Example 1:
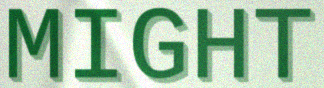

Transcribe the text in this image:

MIGHT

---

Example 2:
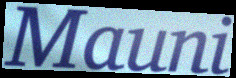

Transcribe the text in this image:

Mauni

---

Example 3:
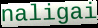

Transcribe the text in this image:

naligai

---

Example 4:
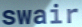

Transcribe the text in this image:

swair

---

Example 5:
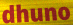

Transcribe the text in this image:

dhuno